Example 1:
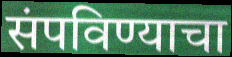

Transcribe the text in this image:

संपविण्याचा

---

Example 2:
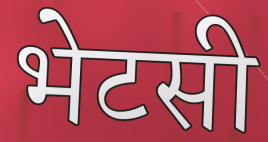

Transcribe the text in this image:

भेटसी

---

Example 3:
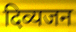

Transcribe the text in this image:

दिव्यजन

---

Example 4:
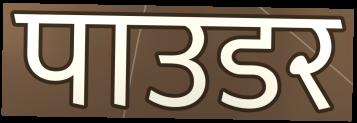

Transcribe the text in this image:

पाउडर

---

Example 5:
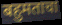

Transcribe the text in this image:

बहुमताचा